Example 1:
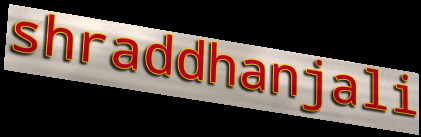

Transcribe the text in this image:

shraddhanjali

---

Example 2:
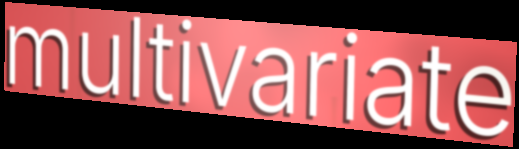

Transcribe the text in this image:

multivariate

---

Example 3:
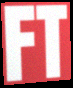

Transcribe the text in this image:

FT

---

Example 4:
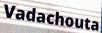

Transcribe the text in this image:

Vadachouta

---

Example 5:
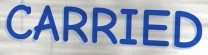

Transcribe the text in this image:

CARRIED